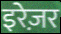
इरेज़र